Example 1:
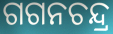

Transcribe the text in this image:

ଗଗନଚନ୍ଦ୍ର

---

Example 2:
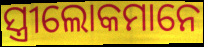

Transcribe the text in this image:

ସ୍ତ୍ରୀଲୋକମାନେ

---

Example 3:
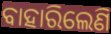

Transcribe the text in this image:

ବାହାରିଲେଣି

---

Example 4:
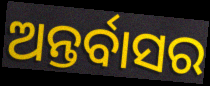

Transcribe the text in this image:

ଅନ୍ତର୍ବାସର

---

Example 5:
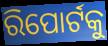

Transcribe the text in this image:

ରିପୋର୍ଟକୁ